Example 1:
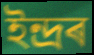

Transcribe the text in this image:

ইন্দ্ৰৰ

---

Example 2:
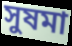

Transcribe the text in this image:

সুষমা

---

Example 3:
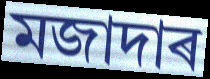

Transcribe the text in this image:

মজাদাৰ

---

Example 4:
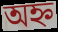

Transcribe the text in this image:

অহ্ন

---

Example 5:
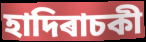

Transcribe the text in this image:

হাদিৰাচকী